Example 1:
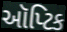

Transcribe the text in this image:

ઑપ્ટિક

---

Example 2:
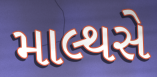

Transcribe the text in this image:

માલ્થસે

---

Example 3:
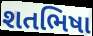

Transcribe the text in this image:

શતભિષા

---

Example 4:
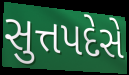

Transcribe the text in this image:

સુત્તપદેસે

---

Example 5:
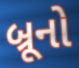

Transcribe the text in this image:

બ્રૂનો